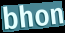
bhon